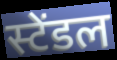
स्टेंडल